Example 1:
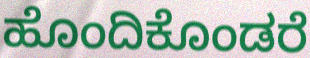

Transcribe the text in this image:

ಹೊಂದಿಕೊಂಡರೆ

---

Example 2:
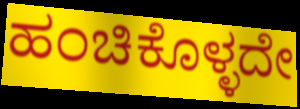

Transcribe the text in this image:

ಹಂಚಿಕೊಳ್ಳದೇ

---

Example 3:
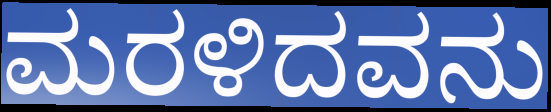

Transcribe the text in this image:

ಮರಳಿದವನು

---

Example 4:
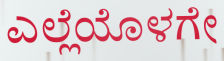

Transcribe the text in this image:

ಎಲ್ಲೆಯೊಳಗೇ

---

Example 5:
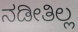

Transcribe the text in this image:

ನಡೀತಿಲ್ಲ